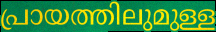
പ്രായത്തിലുമുള്ള